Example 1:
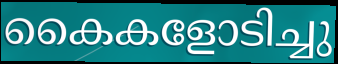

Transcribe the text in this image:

കൈകളോടിച്ചു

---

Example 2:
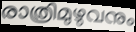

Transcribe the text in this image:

രാത്രിമുഴുവനും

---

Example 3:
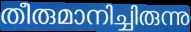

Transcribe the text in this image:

തീരുമാനിച്ചിരുന്നു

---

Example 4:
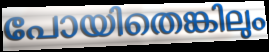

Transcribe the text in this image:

പോയിതെങ്കിലും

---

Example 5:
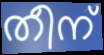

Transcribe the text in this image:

തീന്